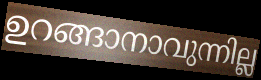
ഉറങ്ങാനാവുന്നില്ല